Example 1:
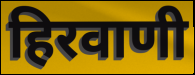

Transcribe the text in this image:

हिरवाणी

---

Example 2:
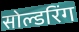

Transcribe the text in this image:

सोल्डरिंग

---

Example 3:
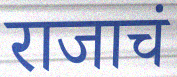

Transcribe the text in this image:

राजाचं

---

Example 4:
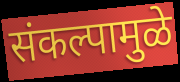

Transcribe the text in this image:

संकल्पामुळे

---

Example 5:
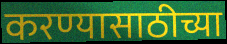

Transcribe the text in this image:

करण्यासाठीच्या